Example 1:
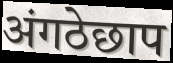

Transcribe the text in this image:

अंगठेछाप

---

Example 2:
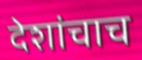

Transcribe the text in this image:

देशांचाच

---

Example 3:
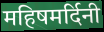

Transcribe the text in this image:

महिषमर्दिनी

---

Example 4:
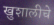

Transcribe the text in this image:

खुशालीचे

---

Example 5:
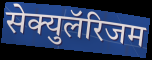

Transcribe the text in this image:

सेक्युलॅरिजम